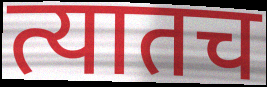
त्यातच